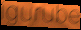
igurube